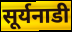
सूर्यनाडी